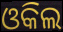
ଓକିଲ